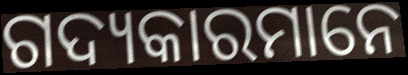
ଗଦ୍ୟକାରମାନେ